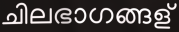
ചിലഭാഗങ്ങള്